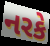
નરકે